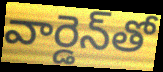
వార్డెన్‌తో